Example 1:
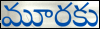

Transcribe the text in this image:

మూరకు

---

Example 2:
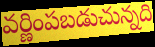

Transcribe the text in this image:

వర్ణింపబడుచున్నది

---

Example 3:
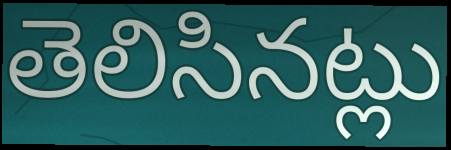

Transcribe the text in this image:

తెలిసినట్లు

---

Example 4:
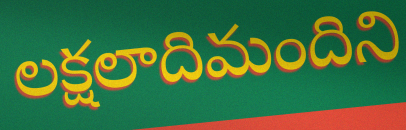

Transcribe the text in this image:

లక్షలాదిమందిని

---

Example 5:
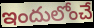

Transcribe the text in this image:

ఇందులోంచే